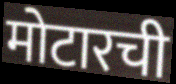
मोटारची